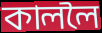
কাললৈ